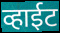
व्हाईट